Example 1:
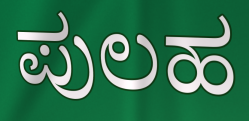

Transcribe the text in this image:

ಪುಲಹ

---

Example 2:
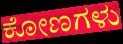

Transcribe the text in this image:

ಕೋಣಗಳು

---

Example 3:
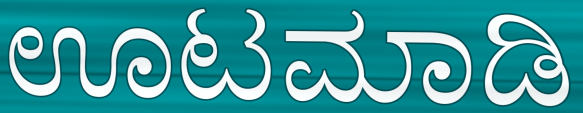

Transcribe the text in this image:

ಊಟಮಾಡಿ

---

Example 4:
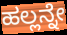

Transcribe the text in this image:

ಹಲ್ಲನ್ನೇ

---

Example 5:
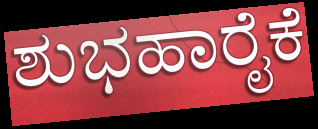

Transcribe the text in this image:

ಶುಭಹಾರೈಕೆ